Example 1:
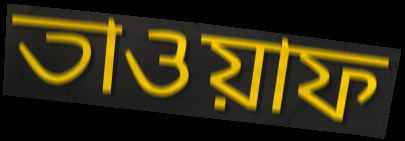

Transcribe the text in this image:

তাওয়াফ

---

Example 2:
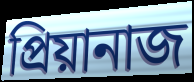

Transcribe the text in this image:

প্রিয়ানাজ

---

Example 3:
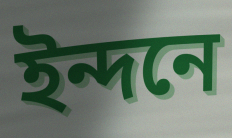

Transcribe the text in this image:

ইন্দনে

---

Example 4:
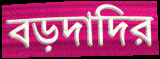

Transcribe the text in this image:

বড়দাদির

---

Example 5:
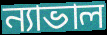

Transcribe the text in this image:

ন্যাভাল